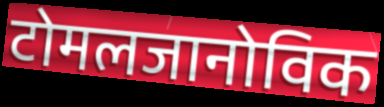
टोमलजानोविक